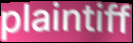
plaintiff